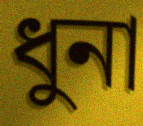
ধুনা